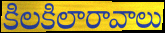
కిలకిలారావాలు